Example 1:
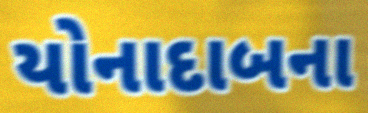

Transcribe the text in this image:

યોનાદાબના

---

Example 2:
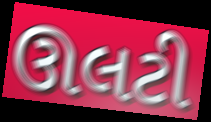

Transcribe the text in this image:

ઊલટી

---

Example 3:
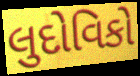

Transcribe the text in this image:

લુદોવિકો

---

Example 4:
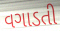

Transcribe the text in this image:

વગાડતી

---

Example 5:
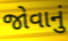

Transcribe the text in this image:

જોવાનું